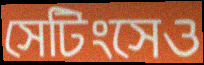
সেটিংসেও